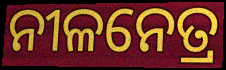
ନୀଳନେତ୍ର